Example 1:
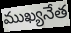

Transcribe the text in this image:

ముఖ్యనేత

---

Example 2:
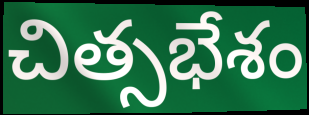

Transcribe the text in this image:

చిత్సభేశం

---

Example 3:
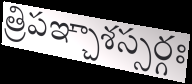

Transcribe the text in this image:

త్రిపఞ్చాశస్సర్గః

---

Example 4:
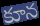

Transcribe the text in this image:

కూన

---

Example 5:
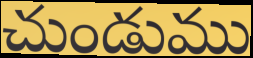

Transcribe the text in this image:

చుండుము